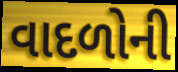
વાદળોની